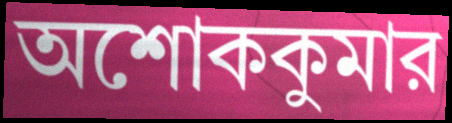
অশোককুমার